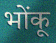
भोंकू